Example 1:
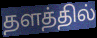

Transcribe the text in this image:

தளத்தில்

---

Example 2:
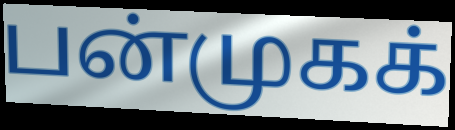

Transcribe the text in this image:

பன்முகக்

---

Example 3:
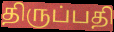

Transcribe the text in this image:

திருப்பதி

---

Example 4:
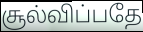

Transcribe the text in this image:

சூல்விப்பதே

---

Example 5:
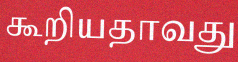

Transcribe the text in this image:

கூறியதாவது